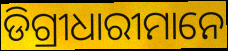
ଡିଗ୍ରୀଧାରୀମାନେ